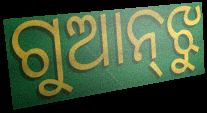
ଗୁଆନ୍‌ଝୁ